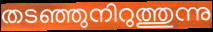
തടഞ്ഞുനിറുത്തുന്നു